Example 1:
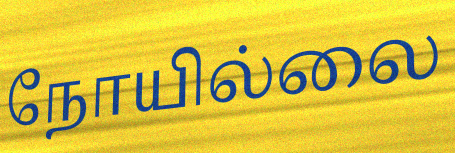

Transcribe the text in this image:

நோயில்லை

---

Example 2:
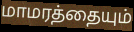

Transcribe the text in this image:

மாமரத்தையும்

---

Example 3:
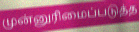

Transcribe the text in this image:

முன்னுரிமைப்படுத்த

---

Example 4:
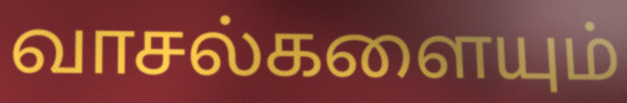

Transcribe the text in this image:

வாசல்களையும்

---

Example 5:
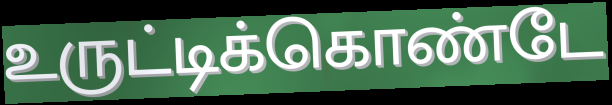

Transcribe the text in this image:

உருட்டிக்கொண்டே